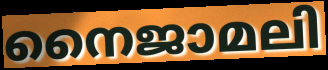
നൈജാമലി